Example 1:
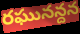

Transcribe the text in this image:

రఘునన్దన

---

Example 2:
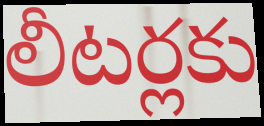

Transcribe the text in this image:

లీటర్లకు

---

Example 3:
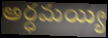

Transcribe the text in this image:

అర్ధమయ్యి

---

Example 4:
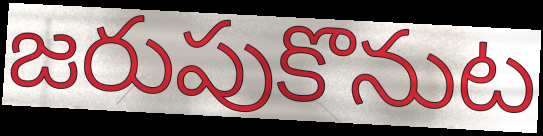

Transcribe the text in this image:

జరుపుకొనుట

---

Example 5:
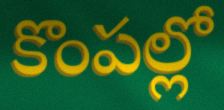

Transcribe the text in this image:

కొంపల్లో